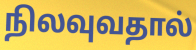
நிலவுவதால்